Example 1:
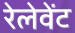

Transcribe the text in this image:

रेलेवेंट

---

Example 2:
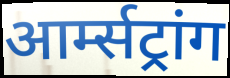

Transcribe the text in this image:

आर्म्सट्रांग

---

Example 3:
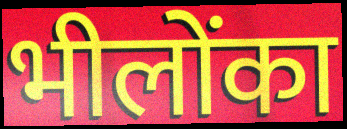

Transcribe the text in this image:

भीलोंका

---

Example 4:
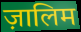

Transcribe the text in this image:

ज़ालिम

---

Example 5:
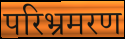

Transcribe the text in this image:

परिभ्रमरण